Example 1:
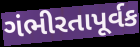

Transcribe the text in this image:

ગંભીરતાપૂર્વક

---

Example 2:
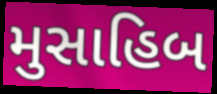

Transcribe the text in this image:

મુસાહિબ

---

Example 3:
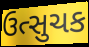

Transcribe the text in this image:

ઉત્સુચક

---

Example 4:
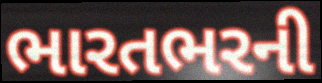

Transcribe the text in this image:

ભારતભરની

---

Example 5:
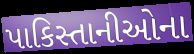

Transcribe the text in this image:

પાકિસ્તાનીઓના